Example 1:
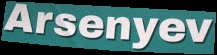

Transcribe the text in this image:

Arsenyev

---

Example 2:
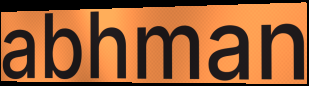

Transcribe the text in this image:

abhman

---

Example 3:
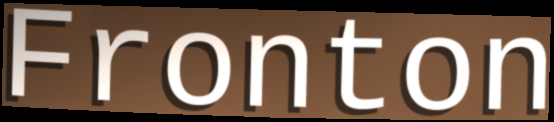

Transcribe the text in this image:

Fronton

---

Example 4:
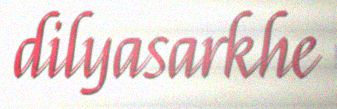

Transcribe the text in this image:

dilyasarkhe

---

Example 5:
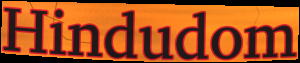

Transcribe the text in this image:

Hindudom